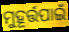
ମୁହୂର୍ତ୍ତପାଇଁ